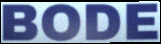
BODE